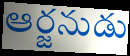
ఆర్జనుడు